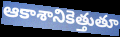
ఆకాశానికెత్తుతూ